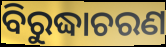
ବିରୁଦ୍ଧାଚରଣ